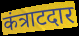
कंत्राटदार